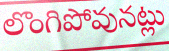
లొంగిపోవునట్లు